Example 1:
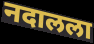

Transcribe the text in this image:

नदालला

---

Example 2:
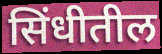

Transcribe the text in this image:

सिंधीतील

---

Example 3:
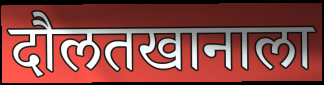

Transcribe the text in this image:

दौलतखानाला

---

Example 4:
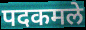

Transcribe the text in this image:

पदकमले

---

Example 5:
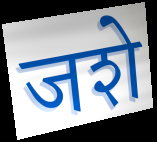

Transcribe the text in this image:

जशे